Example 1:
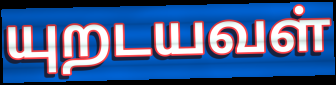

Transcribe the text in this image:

யுறடயவள்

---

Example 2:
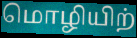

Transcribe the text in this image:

மொழியிற்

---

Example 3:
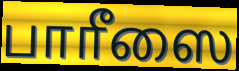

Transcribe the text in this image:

பாரீஸை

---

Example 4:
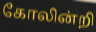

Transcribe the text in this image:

கோலின்றி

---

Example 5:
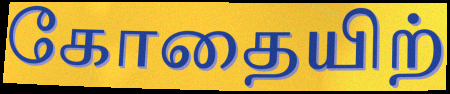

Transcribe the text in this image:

கோதையிற்